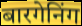
बारगेनिंग